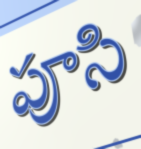
పూసి